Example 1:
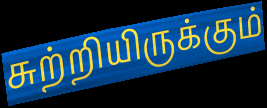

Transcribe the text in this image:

சுற்றியிருக்கும்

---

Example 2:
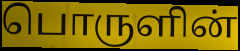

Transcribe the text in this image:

பொருளின்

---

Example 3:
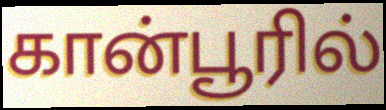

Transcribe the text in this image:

கான்பூரில்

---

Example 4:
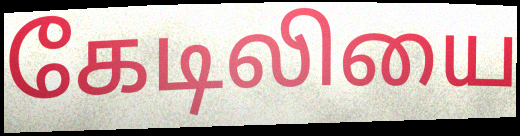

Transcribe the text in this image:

கேடிலியை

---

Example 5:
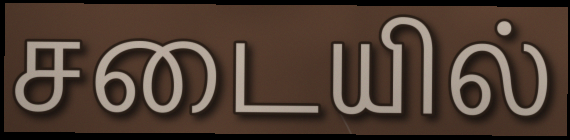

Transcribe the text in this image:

சடையில்